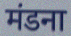
मंडना